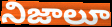
నిజాలూ